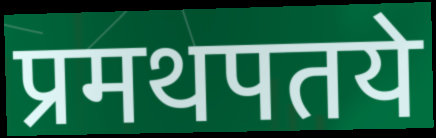
प्रमथपतये